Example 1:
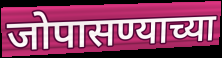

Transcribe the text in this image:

जोपासण्याच्या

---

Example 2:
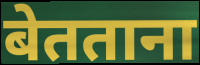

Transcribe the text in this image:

बेतताना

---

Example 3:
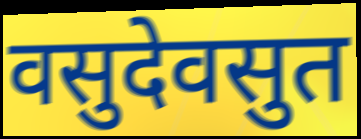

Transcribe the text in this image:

वसुदेवसुत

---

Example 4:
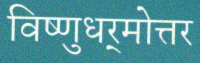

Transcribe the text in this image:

विष्णुधर्मोत्तर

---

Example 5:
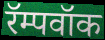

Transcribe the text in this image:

रॅम्पवॉक